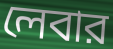
লেবার